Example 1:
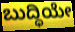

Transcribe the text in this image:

ಬುದ್ಧಿಯೇ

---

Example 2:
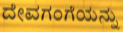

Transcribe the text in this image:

ದೇವಗಂಗೆಯನ್ನು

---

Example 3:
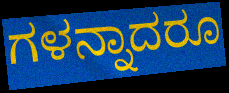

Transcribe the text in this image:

ಗಳನ್ನಾದರೂ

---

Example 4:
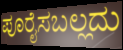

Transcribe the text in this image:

ಪೂರೈಸಬಲ್ಲದು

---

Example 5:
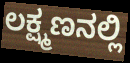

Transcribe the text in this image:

ಲಕ್ಷ್ಮಣನಲ್ಲಿ